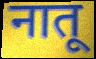
नातू